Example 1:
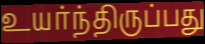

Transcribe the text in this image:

உயர்ந்திருப்பது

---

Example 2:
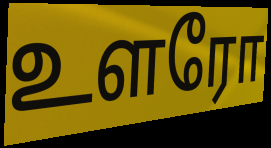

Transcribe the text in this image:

உளரோ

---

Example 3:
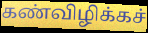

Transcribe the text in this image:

கண்விழிக்கச்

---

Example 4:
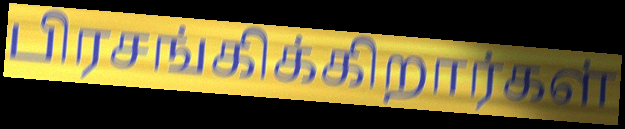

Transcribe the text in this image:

பிரசங்கிக்கிறார்கள்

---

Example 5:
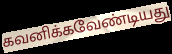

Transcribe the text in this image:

கவனிக்கவேண்டியது